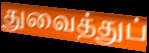
துவைத்துப்